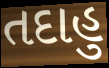
તદાહુ